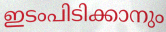
ഇടംപിടിക്കാനും